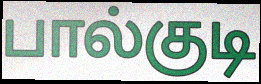
பால்குடி